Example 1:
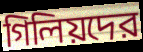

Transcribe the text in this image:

গিলিয়দের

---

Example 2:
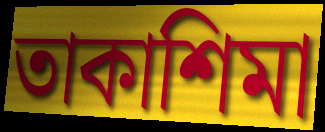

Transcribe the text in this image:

তাকাশিমা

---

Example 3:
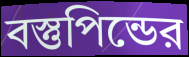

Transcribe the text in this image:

বস্তুপিন্ডের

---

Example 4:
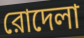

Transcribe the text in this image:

রোদেলা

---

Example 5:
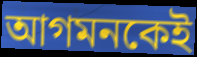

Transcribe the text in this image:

আগমনকেই